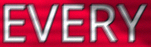
EVERY